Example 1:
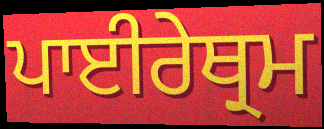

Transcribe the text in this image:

ਪਾਈਰੇਥ੍ਰਮ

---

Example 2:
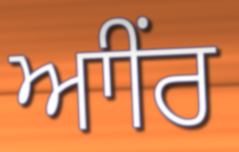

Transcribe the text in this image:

ਆੀਂਰ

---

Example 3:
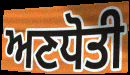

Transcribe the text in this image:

ਅਣਧੋਤੀ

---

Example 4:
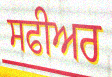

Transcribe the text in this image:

ਸਫੀਅਰ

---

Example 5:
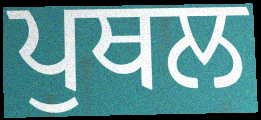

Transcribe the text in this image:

ਪੁਥਲ